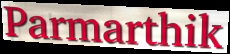
Parmarthik